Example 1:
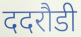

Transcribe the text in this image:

ददरौडी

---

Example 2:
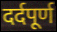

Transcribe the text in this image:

दर्दपूर्ण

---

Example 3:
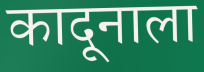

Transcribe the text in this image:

कादूनाला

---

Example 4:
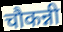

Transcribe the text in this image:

चौकन्नी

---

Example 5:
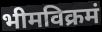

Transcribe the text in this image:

भीमविक्रमं